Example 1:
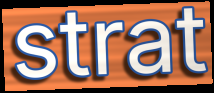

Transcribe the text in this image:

strat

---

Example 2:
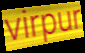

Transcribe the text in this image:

virpur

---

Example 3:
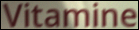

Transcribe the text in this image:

Vitamine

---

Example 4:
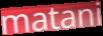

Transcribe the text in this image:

matani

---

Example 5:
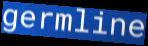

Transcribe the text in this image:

germline